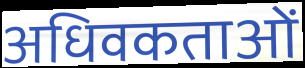
अधिवकताओं